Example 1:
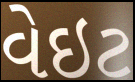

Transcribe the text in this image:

વેઇટ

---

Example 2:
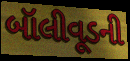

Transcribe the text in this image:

બૉલીવૂડની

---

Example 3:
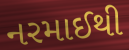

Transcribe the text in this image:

નરમાઈથી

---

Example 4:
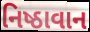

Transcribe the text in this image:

નિષ્ઠાવાન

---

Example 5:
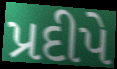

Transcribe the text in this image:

પ્રદીપે